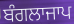
ਬੰਗਲਾਜਾਪ